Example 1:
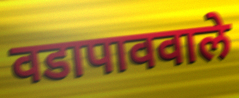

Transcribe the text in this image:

वडापाववाले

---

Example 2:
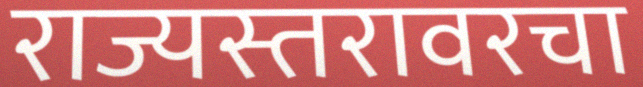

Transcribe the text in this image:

राज्यस्तरावरचा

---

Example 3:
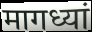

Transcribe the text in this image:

मागध्यां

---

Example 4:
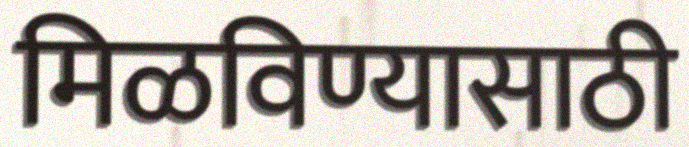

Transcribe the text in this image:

मिळविण्यासाठी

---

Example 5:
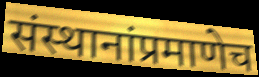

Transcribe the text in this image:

संस्थानांप्रमाणेच